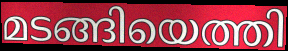
മടങ്ങിയെത്തി